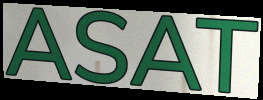
ASAT